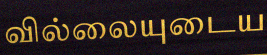
வில்லையுடைய